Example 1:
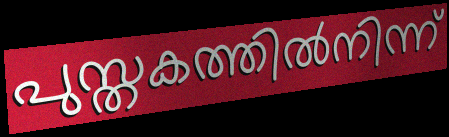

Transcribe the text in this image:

പുസ്തകത്തിൽനിന്ന്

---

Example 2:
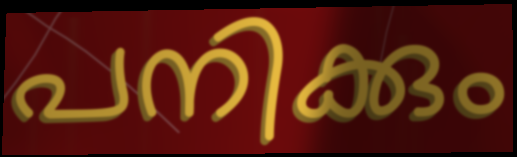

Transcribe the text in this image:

പനിക്കും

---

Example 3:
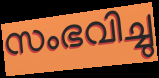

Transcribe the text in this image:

സംഭവിച്ചു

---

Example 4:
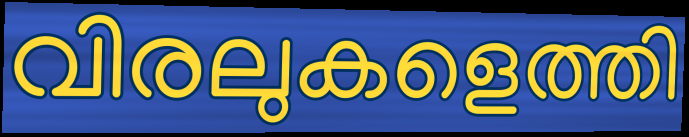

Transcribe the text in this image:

വിരലുകളെത്തി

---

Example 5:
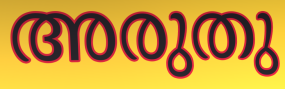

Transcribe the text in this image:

അരുതു